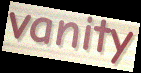
vanity